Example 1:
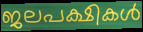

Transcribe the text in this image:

ജലപക്ഷികൾ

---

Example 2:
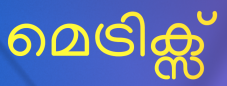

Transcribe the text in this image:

മെട്രിക്സ്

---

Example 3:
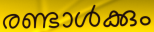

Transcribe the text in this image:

രണ്ടാൾക്കും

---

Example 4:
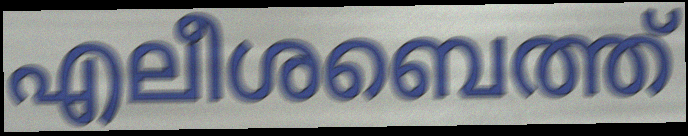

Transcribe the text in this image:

എലീശബെത്ത്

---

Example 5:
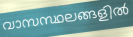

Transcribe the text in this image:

വാസസ്ഥലങ്ങളിൽ